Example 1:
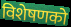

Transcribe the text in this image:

विशेषणको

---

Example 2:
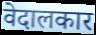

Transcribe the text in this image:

वेदालकार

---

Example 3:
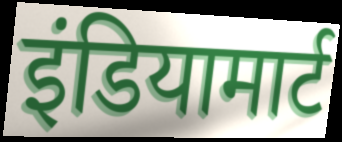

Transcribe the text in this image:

इंडियामार्ट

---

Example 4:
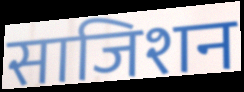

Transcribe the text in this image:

साजिशन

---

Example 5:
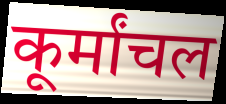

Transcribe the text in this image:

कूर्मांचल